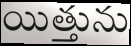
యిత్తును